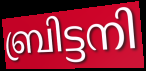
ബ്രിട്ടനി